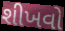
શીખવો